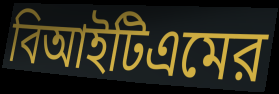
বিআইটিএমের